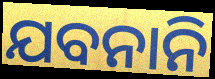
ଯବନାନି